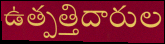
ఉత్పత్తిదారుల